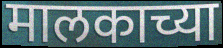
मालकाच्या